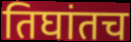
तिघांतच